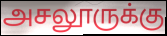
அசலூருக்கு